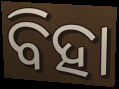
ବିହା